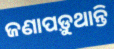
ଜଣାପଡ଼ୁଥାନ୍ତି